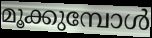
മൂക്കുമ്പോൾ